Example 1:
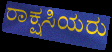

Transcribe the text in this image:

ರಾಕ್ಷಸಿಯರು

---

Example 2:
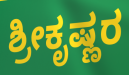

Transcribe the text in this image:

ಶ್ರೀಕೃಷ್ಣರ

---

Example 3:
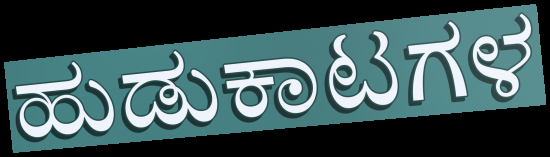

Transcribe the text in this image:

ಹುಡುಕಾಟಗಳ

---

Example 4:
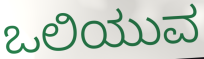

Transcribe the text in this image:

ಒಲಿಯುವ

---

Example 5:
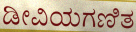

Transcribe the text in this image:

ಡೀವಿಯಗಣಿತ